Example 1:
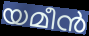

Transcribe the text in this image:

യമീൻ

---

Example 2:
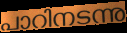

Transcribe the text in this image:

പാറിനടന്നു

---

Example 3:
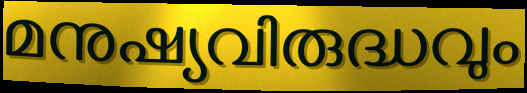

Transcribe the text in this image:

മനുഷ്യവിരുദ്ധവും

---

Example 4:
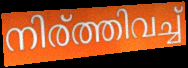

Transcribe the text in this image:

നിര്ത്തിവച്ച്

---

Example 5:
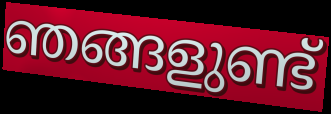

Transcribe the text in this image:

ഞങ്ങളുണ്ട്